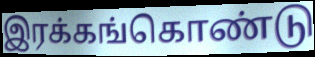
இரக்கங்கொண்டு